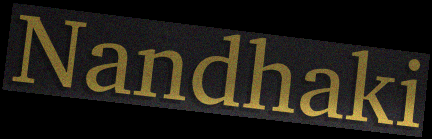
Nandhaki